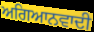
ਅਗਿਆਨਵਾਦੀ